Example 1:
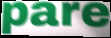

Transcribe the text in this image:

pare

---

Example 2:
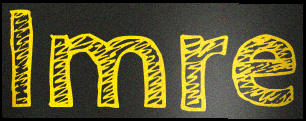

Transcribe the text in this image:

Imre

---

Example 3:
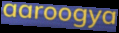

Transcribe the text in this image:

aaroogya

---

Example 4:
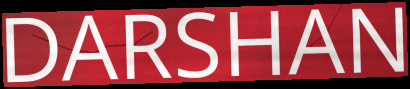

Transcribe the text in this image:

DARSHAN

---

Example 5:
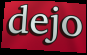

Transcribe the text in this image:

dejo